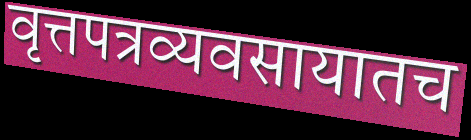
वृत्तपत्रव्यवसायातच